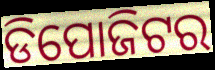
ଡିପୋଜିଟର